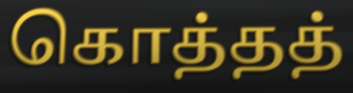
கொத்தத்